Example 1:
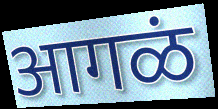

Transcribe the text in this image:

आगळं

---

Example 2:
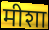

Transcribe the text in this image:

मीशा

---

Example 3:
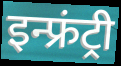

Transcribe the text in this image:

इन्फ्रंट्री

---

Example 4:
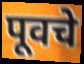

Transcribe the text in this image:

पूवचे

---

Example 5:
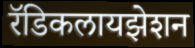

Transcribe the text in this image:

रॅडिकलायझेशन